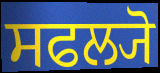
ਸਫਲ੍ਯੋ